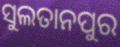
ସୁଲତାନପୁର